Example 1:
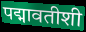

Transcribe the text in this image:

पद्मावतीशी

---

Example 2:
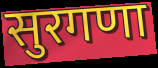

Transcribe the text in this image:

सुरगणा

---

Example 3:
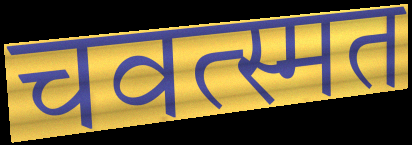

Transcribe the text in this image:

चवत्स्मत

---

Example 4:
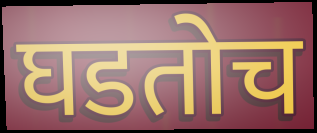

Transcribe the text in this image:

घडतोच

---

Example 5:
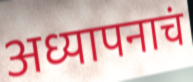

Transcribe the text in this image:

अध्यापनाचं